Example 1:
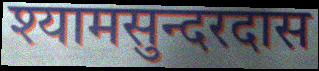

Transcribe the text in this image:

श्यामसुन्दरदास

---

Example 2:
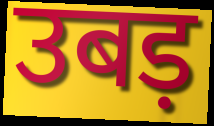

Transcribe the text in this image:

उबड़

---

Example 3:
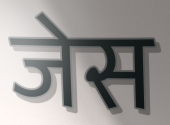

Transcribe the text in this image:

जेस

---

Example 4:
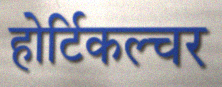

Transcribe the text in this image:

होर्टिकल्चर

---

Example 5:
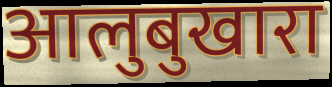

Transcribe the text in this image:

आलुबुखारा